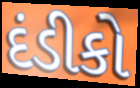
દંડીકો